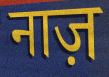
नाज़